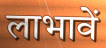
लाभावें